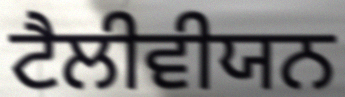
ਟੈਲੀਵੀਯਨ